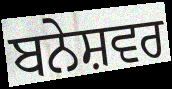
ਬਨੇਸ਼ਵਰ